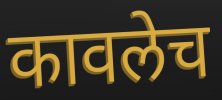
कावलेच